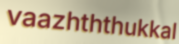
vaazhththukkal